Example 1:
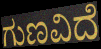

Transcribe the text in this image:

ಗುಣವಿದೆ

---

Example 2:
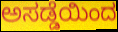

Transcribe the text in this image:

ಅಸಡ್ಡೆಯಿಂದ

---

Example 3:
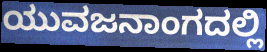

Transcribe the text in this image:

ಯುವಜನಾಂಗದಲ್ಲಿ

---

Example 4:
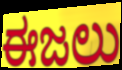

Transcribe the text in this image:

ಈಜಲು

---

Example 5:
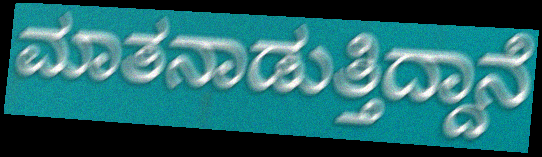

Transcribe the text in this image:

ಮಾತನಾಡುತ್ತಿದ್ದಾನೆ